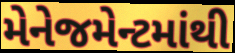
મેનેજમેન્ટમાંથી